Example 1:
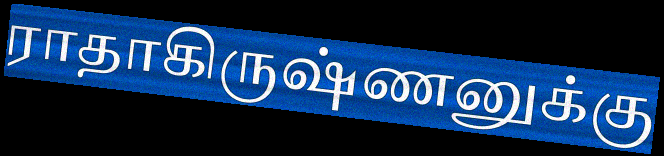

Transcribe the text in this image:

ராதாகிருஷ்ணனுக்கு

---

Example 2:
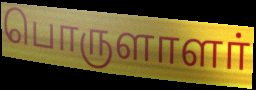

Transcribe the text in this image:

பொருளாளர்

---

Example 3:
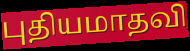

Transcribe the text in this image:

புதியமாதவி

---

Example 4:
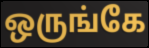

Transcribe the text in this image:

ஒருங்கே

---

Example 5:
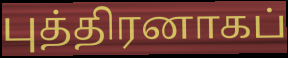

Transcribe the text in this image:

புத்திரனாகப்